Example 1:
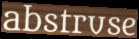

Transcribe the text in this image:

abstruse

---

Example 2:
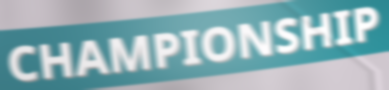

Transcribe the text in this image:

CHAMPIONSHIP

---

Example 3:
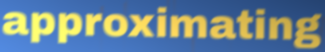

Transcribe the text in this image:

approximating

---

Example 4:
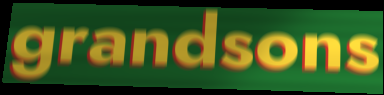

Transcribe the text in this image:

grandsons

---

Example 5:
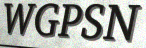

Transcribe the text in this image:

WGPSN